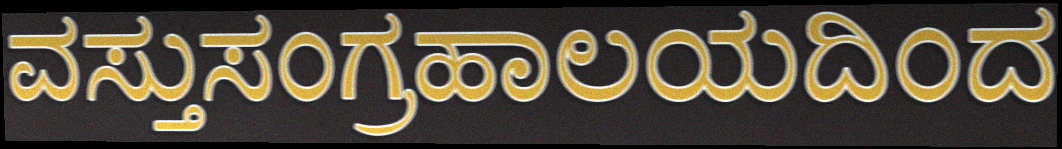
ವಸ್ತುಸಂಗ್ರಹಾಲಯದಿಂದ